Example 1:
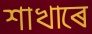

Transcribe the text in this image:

শাখাৰে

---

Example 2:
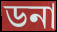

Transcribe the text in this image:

ডনা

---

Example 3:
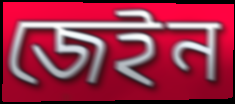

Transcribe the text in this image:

জেইন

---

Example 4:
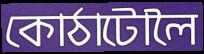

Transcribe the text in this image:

কোঠাটোলৈ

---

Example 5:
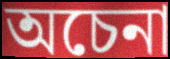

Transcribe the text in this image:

অচেনা